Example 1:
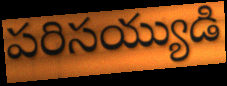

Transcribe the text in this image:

పరిసయ్యుడి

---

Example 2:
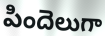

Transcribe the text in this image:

పిందెలుగా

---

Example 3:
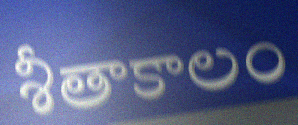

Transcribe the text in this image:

శీతాకాలం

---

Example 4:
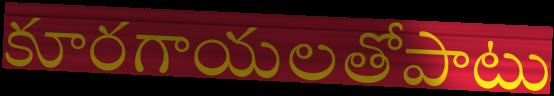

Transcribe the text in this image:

కూరగాయలతోపాటు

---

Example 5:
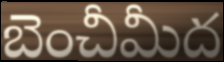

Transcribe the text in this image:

బెంచీమీద